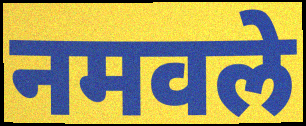
नमवले